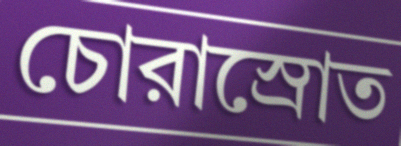
চোরাস্রোত